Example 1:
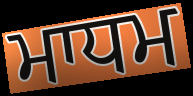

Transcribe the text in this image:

ਮਾਧਮ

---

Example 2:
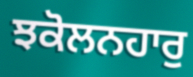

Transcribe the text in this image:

ਝਕੋਲਨਹਾਰੁ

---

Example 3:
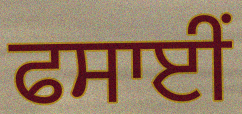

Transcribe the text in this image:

ਫਸਾਈਂ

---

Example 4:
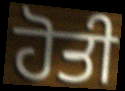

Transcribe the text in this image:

ਹੋਤੀ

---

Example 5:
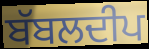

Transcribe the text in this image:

ਬੱਬਲਦੀਪ